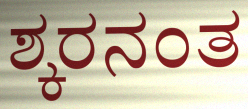
ಶ್ಕರನಂತ